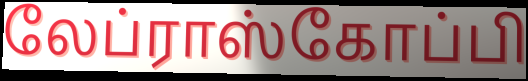
லேப்ராஸ்கோப்பி